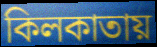
কিলকাতায়